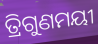
ତ୍ରିଗୁଣମୟୀ